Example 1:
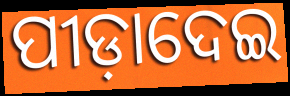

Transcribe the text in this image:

ପୀଡ଼ାଦେଇ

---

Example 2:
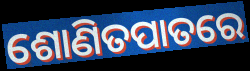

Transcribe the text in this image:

ଶୋଣିତପାତରେ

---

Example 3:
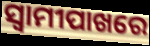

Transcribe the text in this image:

ସ୍ୱାମୀପାଖରେ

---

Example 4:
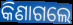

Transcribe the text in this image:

କିଣାଗଲେ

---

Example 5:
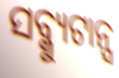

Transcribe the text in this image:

ସବ୍କ୍ୟୁଟାନ୍ସ